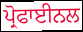
ਪ੍ਰੋਫਾਈਨਲ